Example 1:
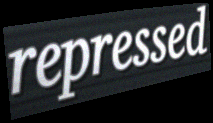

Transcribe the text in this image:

repressed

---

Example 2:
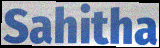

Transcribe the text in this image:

Sahitha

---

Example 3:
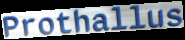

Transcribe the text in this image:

Prothallus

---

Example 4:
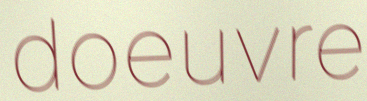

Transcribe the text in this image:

doeuvre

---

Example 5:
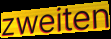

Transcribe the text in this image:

zweiten